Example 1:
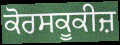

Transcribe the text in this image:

ਕੋਰਸਕੂਕੀਜ਼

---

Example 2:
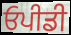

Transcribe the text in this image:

ਓਪੀਡੀ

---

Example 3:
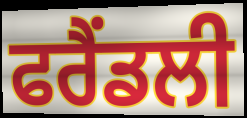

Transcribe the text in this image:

ਫਰੈਂਡਲੀ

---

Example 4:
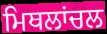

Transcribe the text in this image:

ਮਿਥਲਾਂਚਲ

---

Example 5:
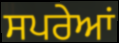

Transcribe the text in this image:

ਸਪਰੇਆਂ